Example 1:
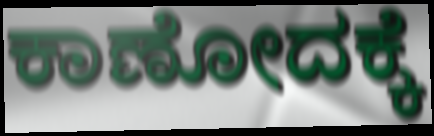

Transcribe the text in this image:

ಕಾಣೋದಕ್ಕೆ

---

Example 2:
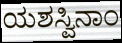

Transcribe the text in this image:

ಯಶಸ್ವಿನಾಂ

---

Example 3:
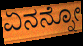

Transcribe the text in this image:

ಏನನ್ನೋ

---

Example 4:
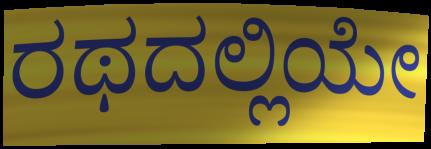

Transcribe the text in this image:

ರಥದಲ್ಲಿಯೇ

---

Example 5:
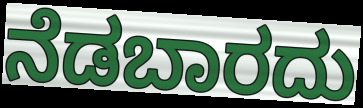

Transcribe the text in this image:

ನೆಡಬಾರದು